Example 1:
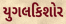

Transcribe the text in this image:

યુગલકિશોર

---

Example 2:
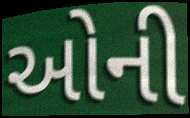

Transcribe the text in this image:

ઓની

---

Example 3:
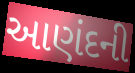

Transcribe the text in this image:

આણંદની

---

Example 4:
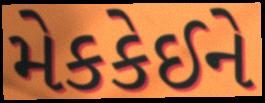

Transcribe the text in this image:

મેકકેઈને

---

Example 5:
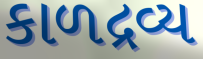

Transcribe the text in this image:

કાળદ્રવ્ય